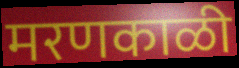
मरणकाळी